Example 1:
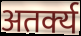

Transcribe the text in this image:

अतर्क्‍य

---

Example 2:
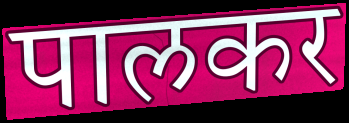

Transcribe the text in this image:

पालकर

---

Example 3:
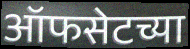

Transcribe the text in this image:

ऑफसेटच्या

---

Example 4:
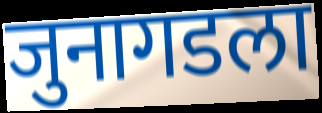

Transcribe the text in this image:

जुनागडला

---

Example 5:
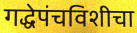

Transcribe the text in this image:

गद्धेपंचविशीचा